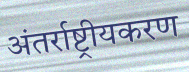
अंतर्राष्ट्रीयकरण